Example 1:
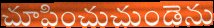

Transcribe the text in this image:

చూపించుచుండెను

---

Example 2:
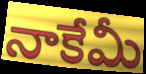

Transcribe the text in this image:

నాకేమీ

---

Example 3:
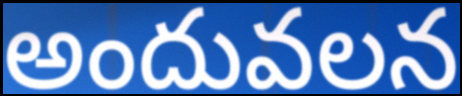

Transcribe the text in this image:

అందువలన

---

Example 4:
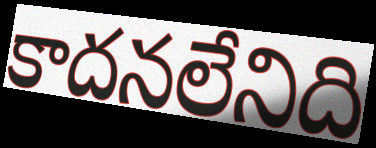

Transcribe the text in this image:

కాదనలేనిది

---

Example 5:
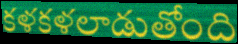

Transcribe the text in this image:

కళకళలాడుతోంది